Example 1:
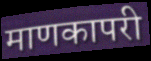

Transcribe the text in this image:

माणकापरी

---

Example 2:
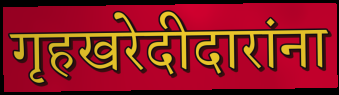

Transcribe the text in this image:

गृहखरेदीदारांना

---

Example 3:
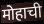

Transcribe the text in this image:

मोहाची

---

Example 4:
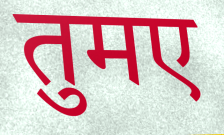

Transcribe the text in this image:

तुमए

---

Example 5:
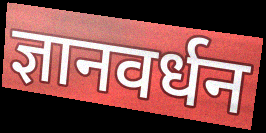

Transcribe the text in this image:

ज्ञानवर्धन